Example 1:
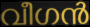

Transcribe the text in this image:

വീഗൻ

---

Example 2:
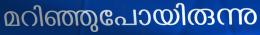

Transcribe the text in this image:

മറിഞ്ഞുപോയിരുന്നു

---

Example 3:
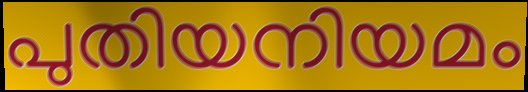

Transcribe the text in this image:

പുതിയനിയമം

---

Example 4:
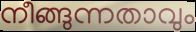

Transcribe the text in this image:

നീങ്ങുന്നതാവും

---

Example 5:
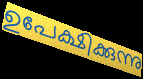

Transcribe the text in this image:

ഉപേക്ഷിക്കുന്നു